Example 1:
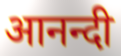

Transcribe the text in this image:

आनन्दी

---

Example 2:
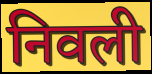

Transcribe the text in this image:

निवली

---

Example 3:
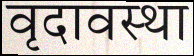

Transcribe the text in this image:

वृदावस्था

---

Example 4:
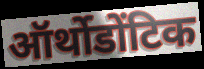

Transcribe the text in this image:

ऑर्थोडोंटिक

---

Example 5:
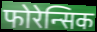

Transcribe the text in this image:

फोरेन्सिक